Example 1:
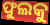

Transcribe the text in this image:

ଫୁଲକୁ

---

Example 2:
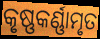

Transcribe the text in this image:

କୃଷ୍ଣକର୍ଣ୍ଣାମୃତ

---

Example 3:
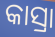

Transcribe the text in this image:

କାସ୍ରା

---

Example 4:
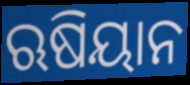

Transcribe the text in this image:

ଋଷିୟାନ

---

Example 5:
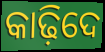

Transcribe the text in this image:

କାଢ଼ିଦେ